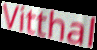
Vitthal